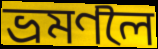
ভ্ৰমণলৈ